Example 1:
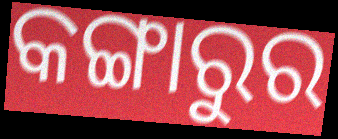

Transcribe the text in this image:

କଙ୍ଗାରୁର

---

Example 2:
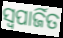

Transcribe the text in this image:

ସ୍ଵପାର୍ଜିତ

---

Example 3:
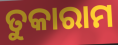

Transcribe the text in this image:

ତୁକାରାମ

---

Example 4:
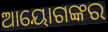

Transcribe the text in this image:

ଆୟୋଗଙ୍କର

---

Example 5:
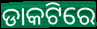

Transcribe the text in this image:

ଡାକଟିରେ